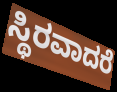
ಸ್ಥಿರವಾದರೆ